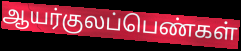
ஆயர்குலப்பெண்கள்